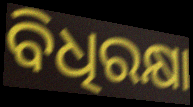
ବିଧିରକ୍ଷା